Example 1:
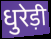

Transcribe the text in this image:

धुरेड़ी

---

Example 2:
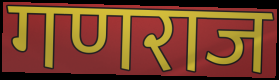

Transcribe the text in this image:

गणराज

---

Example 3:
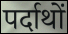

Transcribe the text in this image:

पर्दाथों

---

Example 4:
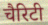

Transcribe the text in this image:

चैरिटी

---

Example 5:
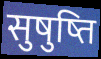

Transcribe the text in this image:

सुषुष्ति